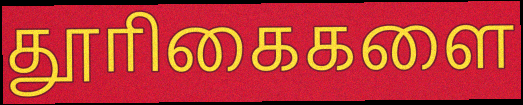
தூரிகைகளை